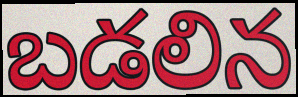
బడలిన